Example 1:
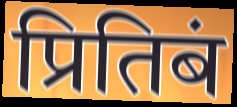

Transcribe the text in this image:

प्रितिबं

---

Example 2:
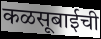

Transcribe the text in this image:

कळसूबाईची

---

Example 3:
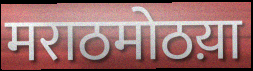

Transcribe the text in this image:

मराठमोठय़ा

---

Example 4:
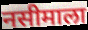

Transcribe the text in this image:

नसीमाला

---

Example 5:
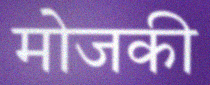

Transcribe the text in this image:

मोजकी